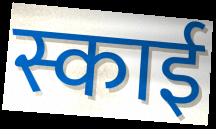
स्काई